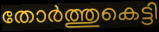
തോർത്തുകെട്ടി